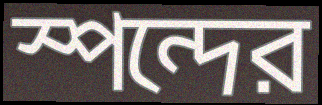
স্পন্দের